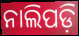
ନାଲିପଡ଼ି